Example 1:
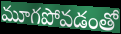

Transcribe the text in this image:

మూగపోవడంతో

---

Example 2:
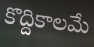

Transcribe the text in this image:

కొద్దికాలమే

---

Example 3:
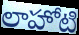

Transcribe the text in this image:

లాహోటి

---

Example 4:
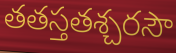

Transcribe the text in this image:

తతస్తతశ్చరసౌ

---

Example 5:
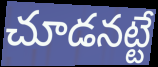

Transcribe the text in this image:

చూడనట్టే